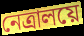
নেত্রালয়ে